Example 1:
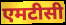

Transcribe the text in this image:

एमटीसी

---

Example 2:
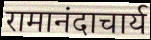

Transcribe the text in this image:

रामानंदाचार्य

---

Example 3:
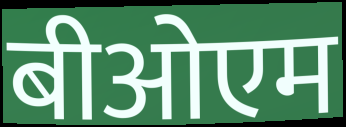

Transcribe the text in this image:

बीओएम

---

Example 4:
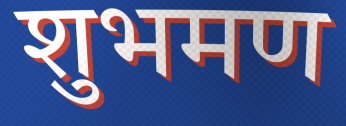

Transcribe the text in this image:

शुभमण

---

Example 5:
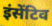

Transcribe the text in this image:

इंसेंटिव